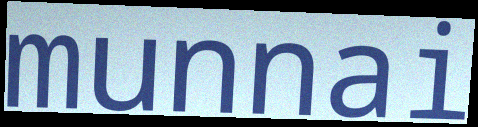
munnai